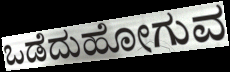
ಒಡೆದುಹೋಗುವ